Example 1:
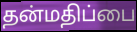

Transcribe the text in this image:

தன்மதிப்பை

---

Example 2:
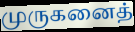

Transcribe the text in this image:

முருகனைத்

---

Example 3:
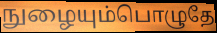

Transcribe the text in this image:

நுழையும்பொழுதே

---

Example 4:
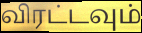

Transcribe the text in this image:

விரட்டவும்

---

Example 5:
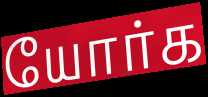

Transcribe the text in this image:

யோர்க